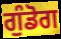
ਗੁੰਡੋਗ